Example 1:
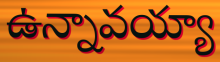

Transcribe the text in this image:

ఉన్నావయ్యా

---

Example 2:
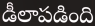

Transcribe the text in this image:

డీలాపడింది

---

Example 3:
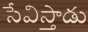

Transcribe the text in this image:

సేవిస్తాడు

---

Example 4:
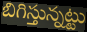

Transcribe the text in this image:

బిగిస్తున్నట్టు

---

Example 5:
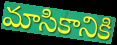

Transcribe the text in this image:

మాసికానికి